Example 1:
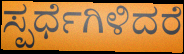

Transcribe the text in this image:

ಸ್ಪರ್ಧೆಗಿಳಿದರೆ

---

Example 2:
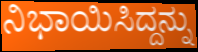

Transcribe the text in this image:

ನಿಭಾಯಿಸಿದ್ದನ್ನು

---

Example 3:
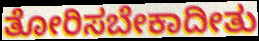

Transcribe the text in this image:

ತೋರಿಸಬೇಕಾದೀತು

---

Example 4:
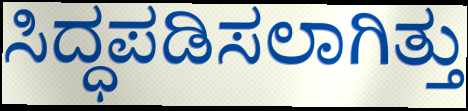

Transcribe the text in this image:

ಸಿದ್ಧಪಡಿಸಲಾಗಿತ್ತು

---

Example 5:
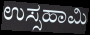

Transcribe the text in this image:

ಉಸ್ಸಹಾಮಿ